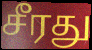
சீரது